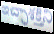
ఇచ్ఛాశక్తిని